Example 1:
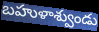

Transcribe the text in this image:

బహుళాశ్వుండు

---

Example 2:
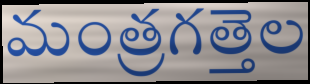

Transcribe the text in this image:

మంత్రగత్తెల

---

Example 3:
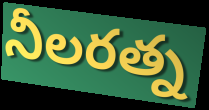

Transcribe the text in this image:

నీలరత్న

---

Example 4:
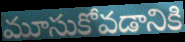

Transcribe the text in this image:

మూసుకోవడానికి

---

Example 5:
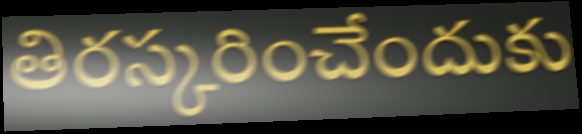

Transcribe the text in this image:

తిరస్కరించేందుకు